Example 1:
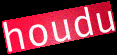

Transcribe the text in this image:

houdu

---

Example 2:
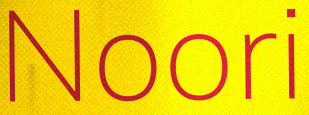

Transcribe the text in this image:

Noori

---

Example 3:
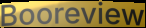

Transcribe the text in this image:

Booreview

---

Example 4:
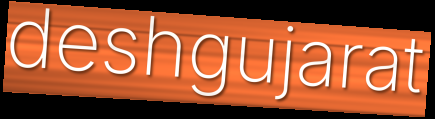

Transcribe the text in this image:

deshgujarat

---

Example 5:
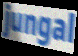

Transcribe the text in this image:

jungal